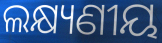
ଲକ୍ଷ୍ୟଣୀୟ